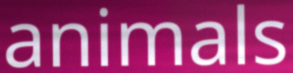
animals